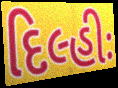
દિલ્હીઃ